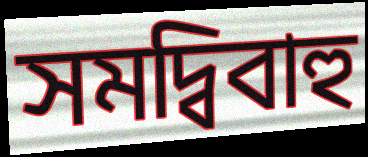
সমদ্বিবাহু